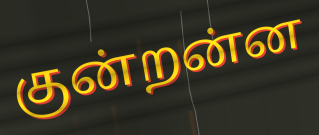
குன்றன்ன